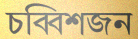
চব্বিশজন